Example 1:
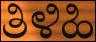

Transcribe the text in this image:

ತಿಳಿಹಿ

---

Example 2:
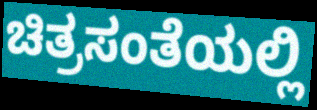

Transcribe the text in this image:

ಚಿತ್ರಸಂತೆಯಲ್ಲಿ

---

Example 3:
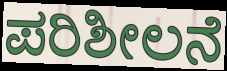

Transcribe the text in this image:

ಪರಿಶೀಲನೆ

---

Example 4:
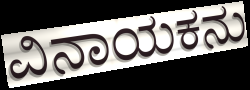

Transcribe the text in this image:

ವಿನಾಯಕನು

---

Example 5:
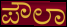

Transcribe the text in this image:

ಪೌಲಾ